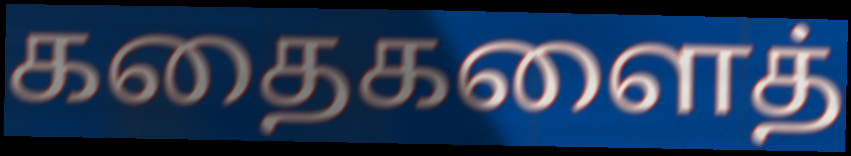
கதைகளைத்